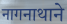
नागनाथाने